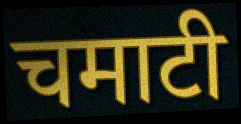
चमाटी